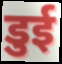
डुई